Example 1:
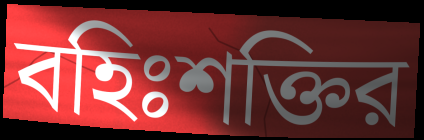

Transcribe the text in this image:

বহিঃশক্তির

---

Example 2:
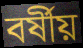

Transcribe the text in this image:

বর্ষীয়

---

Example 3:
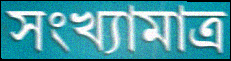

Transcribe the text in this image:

সংখ্যামাত্র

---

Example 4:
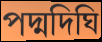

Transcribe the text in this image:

পদ্মদিঘি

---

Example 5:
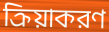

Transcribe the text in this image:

ক্রিয়াকরণ